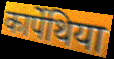
कार्पेथिया